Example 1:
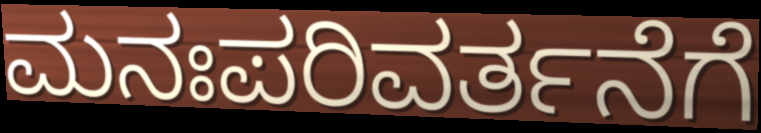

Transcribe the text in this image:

ಮನಃಪರಿವರ್ತನೆಗೆ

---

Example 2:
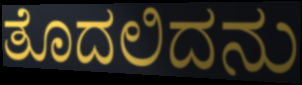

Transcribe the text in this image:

ತೊದಲಿದನು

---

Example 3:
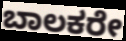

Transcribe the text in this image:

ಬಾಲಕರೇ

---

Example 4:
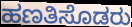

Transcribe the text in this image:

ಹಣತಿಸೊಡರು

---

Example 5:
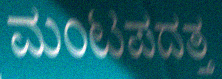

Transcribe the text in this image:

ಮಂಟಪದತ್ತ